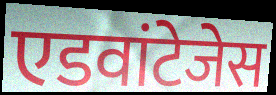
एडवांटेजेस